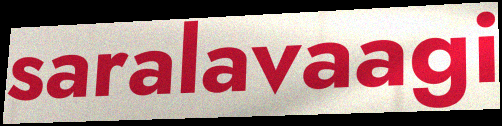
saralavaagi